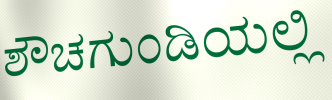
ಶೌಚಗುಂಡಿಯಲ್ಲಿ